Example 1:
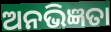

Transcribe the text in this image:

ଅନଭିଜ୍ଞତା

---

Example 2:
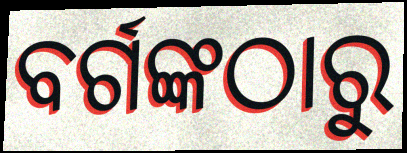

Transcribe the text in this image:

ବର୍ଗଙ୍କଠାରୁ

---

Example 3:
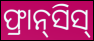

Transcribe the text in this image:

ଫ୍ରାନ୍‌ସିସ୍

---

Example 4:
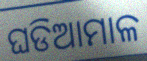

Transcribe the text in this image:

ଘଡିଆମାଳ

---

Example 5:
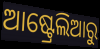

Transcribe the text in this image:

ଆଷ୍ଟ୍ରେଲିଆରୁ